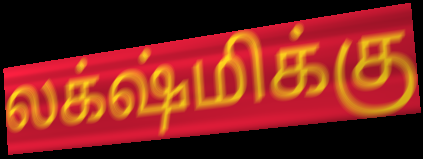
லக்‌ஷ்மிக்கு